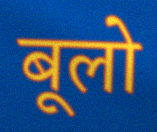
बूलो